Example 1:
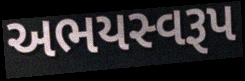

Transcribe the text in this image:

અભયસ્વરૂપ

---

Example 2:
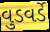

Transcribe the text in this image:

વુડવર્ડે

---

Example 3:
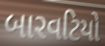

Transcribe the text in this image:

બારવટિયો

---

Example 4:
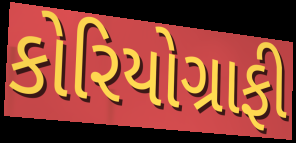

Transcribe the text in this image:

કોરિયોગ્રાફી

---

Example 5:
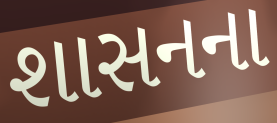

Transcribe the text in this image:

શાસનના